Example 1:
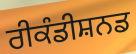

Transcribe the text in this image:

ਰੀਕੰਡੀਸ਼ਨਡ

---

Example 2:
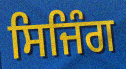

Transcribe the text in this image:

ਸਿਜਿੰਗ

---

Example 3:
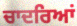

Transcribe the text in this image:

ਚਾਦਰਿਆਂ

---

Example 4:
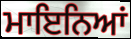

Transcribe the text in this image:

ਮਾਇਨਿਆਂ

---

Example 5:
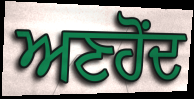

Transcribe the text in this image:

ਅਣਹੋਂਦ